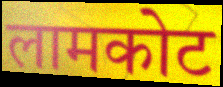
लामकोट